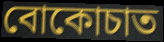
বোকোচাত